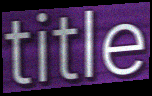
title